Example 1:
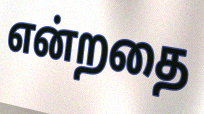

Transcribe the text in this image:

என்றதை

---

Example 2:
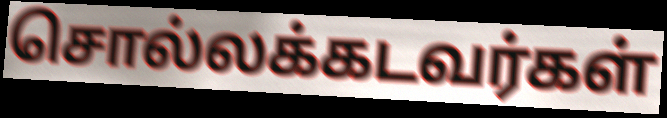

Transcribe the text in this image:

சொல்லக்கடவர்கள்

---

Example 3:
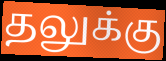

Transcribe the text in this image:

தலுக்கு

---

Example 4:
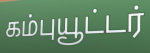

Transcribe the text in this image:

கம்புயூட்டர்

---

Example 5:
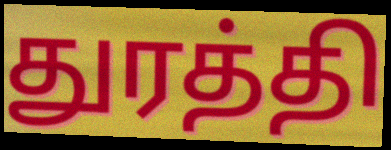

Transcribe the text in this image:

துரத்தி